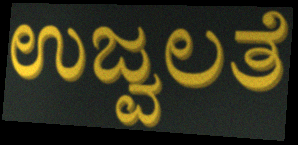
ಉಜ್ವಲತೆ